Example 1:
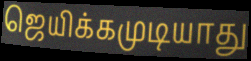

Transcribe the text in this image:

ஜெயிக்கமுடியாது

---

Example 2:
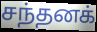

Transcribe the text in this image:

சந்தனக்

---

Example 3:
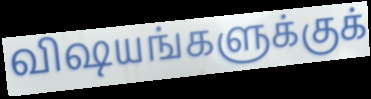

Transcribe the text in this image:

விஷயங்களுக்குக்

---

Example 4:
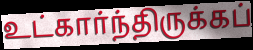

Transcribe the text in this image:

உட்கார்ந்திருக்கப்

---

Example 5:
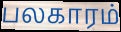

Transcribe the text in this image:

பலகாரம்